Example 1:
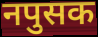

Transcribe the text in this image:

नपुसक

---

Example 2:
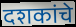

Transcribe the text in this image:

दशकांचे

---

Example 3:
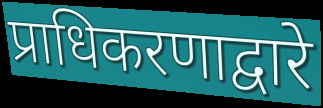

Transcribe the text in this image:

प्राधिकरणाद्वारे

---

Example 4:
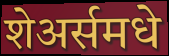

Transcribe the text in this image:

शेअर्समधे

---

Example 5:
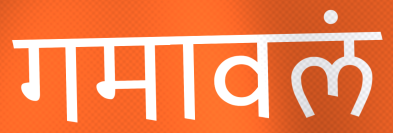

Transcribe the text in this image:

गमावलं